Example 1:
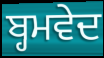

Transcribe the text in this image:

ਬ੍ਹਮਵੇਦ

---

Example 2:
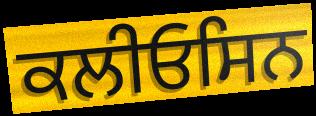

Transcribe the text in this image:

ਕਲੀਓਸਿਨ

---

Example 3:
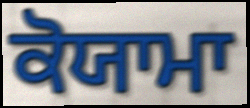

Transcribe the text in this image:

ਕੋਯਾਮਾ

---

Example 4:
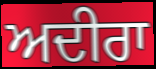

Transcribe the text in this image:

ਅਦੀਰਾ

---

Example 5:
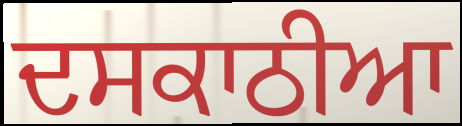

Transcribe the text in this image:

ਦਸਕਾਠੀਆ